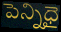
పెన్నిధై